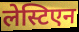
लेस्टिएन